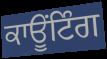
ਕਾਊਂਟਿੰਗ